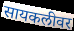
सायकलीवर